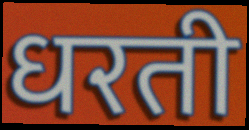
धरती